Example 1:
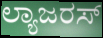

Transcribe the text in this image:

ಲ್ಯಾಜರಸ್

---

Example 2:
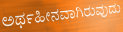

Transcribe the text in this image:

ಅರ್ಥಹೀನವಾಗಿರುವುದು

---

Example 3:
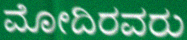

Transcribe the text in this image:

ಮೋದಿರವರು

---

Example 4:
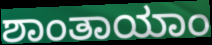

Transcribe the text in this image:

ಶಾಂತಾಯಾಂ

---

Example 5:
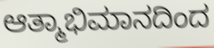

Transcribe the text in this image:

ಆತ್ಮಾಭಿಮಾನದಿಂದ